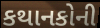
કથાનકોની